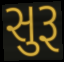
સુરૂ